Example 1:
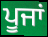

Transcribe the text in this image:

ਪੂਜਾਂ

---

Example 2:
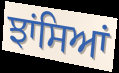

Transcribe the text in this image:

ਝਾਂਸਿਆਂ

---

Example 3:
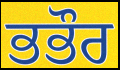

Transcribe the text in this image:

ਭਭੌਰ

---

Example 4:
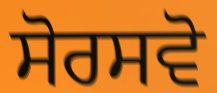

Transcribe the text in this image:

ਸੋਰਸਵੋ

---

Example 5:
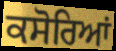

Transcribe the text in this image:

ਕਸੋਰਿਆਂ